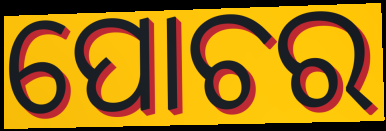
ପୋଚର